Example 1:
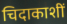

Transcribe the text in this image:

चिदाकाशीं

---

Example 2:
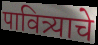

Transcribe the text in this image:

पावित्र्याचे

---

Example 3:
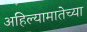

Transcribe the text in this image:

अहिल्यामातेच्या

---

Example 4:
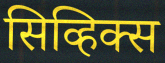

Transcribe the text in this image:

सिव्हिक्स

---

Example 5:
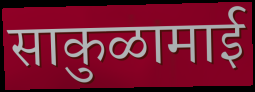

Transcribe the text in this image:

साकुळामाई